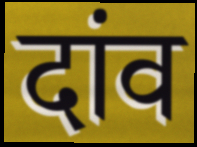
दांव